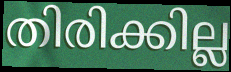
തിരിക്കില്ല